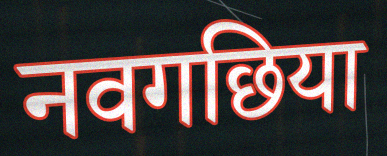
नवगछिया